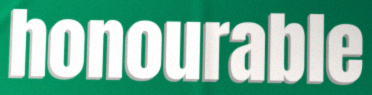
honourable